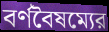
বর্ণবৈষম্যের